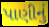
પાણીનું